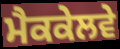
ਮੈਕਕੇਲਵੇ